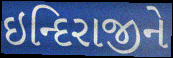
ઇન્દિરાજીને